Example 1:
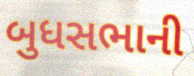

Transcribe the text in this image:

બુધસભાની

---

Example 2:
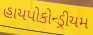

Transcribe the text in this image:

હાયપોકોન્ડ્રીયમ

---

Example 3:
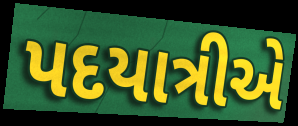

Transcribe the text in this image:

પદયાત્રીએ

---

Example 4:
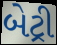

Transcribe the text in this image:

બેટ્રી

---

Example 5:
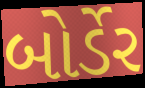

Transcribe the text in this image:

બોર્ડેર